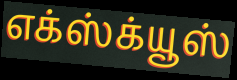
எக்ஸ்க்யூஸ்